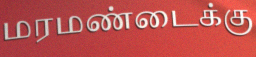
மரமண்டைக்கு